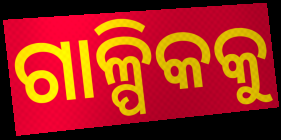
ଗାଳ୍ପିକକୁ